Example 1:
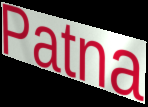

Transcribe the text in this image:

Patna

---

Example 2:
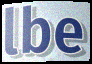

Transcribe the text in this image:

lbe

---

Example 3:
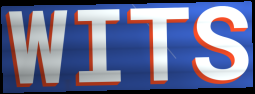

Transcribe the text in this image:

WITS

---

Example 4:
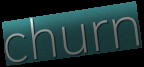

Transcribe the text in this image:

churn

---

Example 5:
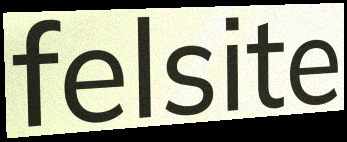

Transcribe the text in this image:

felsite